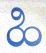
ಹಿ